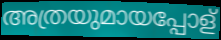
അത്രയുമായപ്പോള്